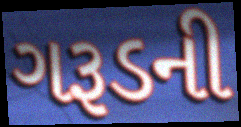
ગરૂડની